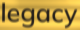
legacy